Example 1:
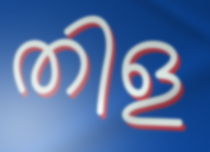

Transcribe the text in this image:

തിള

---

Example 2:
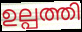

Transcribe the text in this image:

ഉല്പത്തി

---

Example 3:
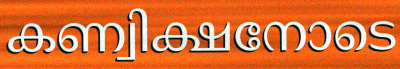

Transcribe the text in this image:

കണ്വിക്ഷനോടെ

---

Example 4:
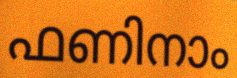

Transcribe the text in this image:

ഫണിനാം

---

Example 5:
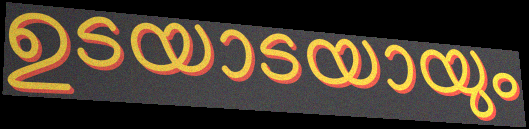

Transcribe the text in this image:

ഉടയാടയായും